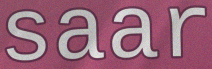
saar